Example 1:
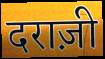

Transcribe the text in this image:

दराज़ी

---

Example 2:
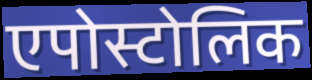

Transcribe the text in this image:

एपोस्टोलिक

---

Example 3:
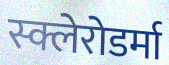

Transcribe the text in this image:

स्क्लेरोडर्मा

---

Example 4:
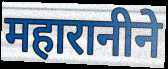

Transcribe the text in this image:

महारानीने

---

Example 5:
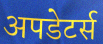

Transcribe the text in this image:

अपडेटर्स